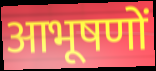
आभूषणों